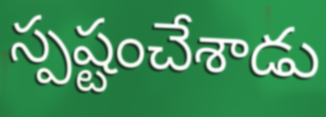
స్పష్టంచేశాడు